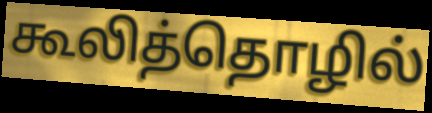
கூலித்தொழில்